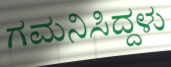
ಗಮನಿಸಿದ್ದಳು